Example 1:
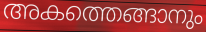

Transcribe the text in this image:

അകത്തെങ്ങാനും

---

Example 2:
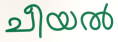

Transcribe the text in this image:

ചീയൽ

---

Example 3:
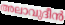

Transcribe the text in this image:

അലാവുദീൻ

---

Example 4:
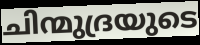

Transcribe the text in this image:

ചിന്മുദ്രയുടെ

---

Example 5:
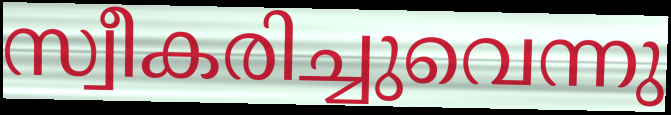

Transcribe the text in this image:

സ്വീകരിച്ചുവെന്നു